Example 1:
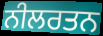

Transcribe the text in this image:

ਨੀਲਰਤਨ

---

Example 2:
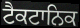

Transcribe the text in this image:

ਟੈਕਟਾਨਿਕ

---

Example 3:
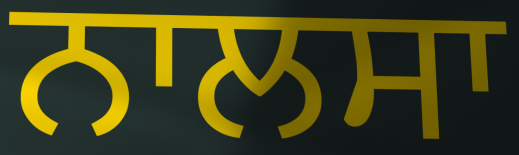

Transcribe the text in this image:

ਨਾਲਸਾ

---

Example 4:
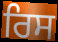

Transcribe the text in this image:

ਰਿਸ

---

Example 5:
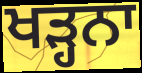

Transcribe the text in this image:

ਖੜ੍ਹਨਾ